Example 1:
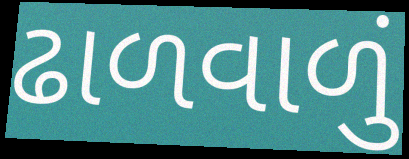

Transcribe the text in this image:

ઢાળવાળું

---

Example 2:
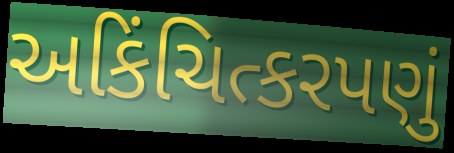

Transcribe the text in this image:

અકિંચિત્કરપણું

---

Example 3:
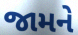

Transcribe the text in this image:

જામને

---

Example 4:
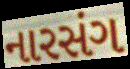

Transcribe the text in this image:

નારસંગ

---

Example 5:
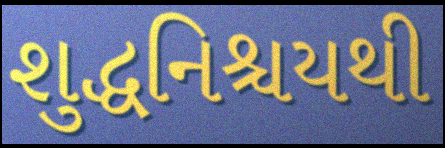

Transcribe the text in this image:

શુદ્ધનિશ્ચયથી